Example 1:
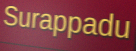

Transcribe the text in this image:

Surappadu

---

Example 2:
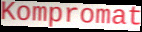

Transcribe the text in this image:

Kompromat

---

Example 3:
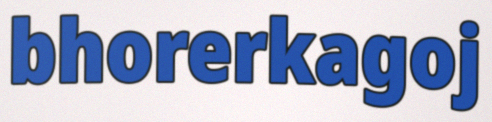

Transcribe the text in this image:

bhorerkagoj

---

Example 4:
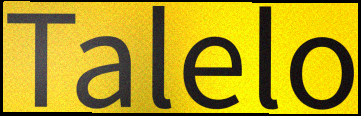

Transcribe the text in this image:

Talelo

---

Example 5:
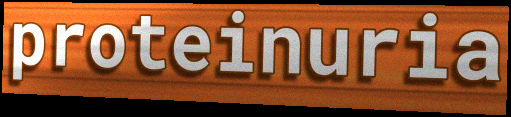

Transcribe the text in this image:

proteinuria